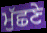
ਮੁੱਛਣੇ